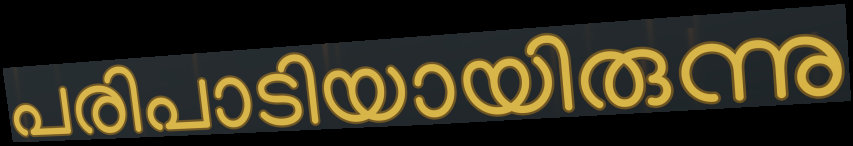
പരിപാടിയായിരുന്നു